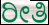
ರೀತಿ